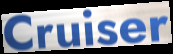
Cruiser